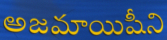
అజమాయిషీని